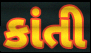
કાંતી